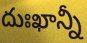
దుఃఖాన్నీ